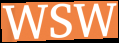
WSW